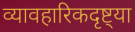
व्यावहारिकदृष्ट्या